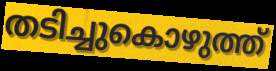
തടിച്ചുകൊഴുത്ത്